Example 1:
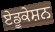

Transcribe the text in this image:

ਏਡੂਕੇਸ਼ਨ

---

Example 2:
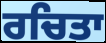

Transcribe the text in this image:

ਰਚਿਤਾ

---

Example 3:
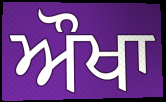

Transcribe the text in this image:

ਔਖਾ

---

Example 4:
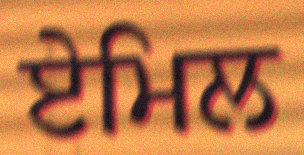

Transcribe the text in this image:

ਏਮਿਲ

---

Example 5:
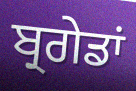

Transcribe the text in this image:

ਬ੍ਰਗੇਡਾਂ